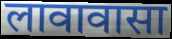
लावावासा